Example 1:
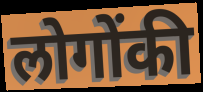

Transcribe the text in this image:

लोगोंकी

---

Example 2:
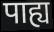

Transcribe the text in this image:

पाह्य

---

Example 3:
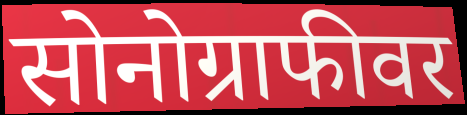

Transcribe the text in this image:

सोनोग्राफीवर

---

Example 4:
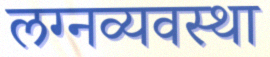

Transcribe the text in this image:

लग्नव्यवस्था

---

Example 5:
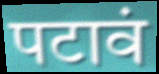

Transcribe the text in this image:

पटावं